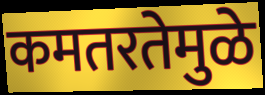
कमतरतेमुळे